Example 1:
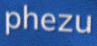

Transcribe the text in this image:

phezu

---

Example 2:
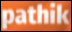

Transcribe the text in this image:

pathik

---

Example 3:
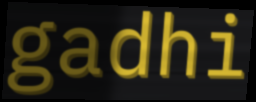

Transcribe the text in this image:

gadhi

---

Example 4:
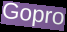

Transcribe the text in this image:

Gopro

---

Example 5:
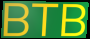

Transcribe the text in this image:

BTB